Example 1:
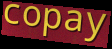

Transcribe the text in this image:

copay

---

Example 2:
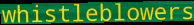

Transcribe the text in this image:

whistleblowers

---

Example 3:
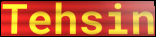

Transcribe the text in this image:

Tehsin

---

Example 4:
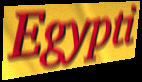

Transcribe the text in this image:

Egypti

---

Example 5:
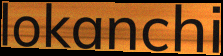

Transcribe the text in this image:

lokanchi